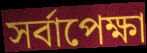
সৰ্বাপেক্ষা